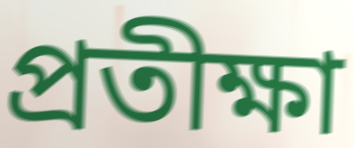
প্ৰতীক্ষা